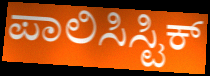
ಪಾಲಿಸಿಸ್ಟಿಕ್